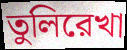
তুলিরেখা